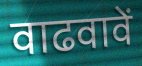
वाढवावें